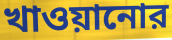
খাওয়ানোর